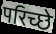
परिच्छे